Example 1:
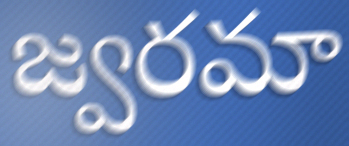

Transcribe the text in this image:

జ్వరమా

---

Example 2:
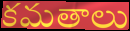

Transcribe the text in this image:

కమతాలు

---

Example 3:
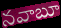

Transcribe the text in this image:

నవాబూ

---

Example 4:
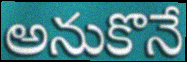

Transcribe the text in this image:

అనుకొనే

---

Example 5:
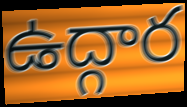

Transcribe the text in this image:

ఉద్గార